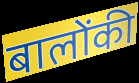
बालोंकी